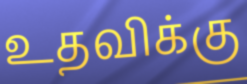
உதவிக்கு